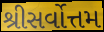
શ્રીસર્વોત્તમ